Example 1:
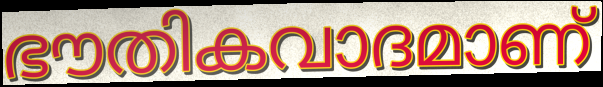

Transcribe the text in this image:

ഭൗതികവാദമാണ്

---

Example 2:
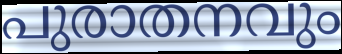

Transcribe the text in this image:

പുരാതനവും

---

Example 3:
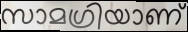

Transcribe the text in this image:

സാമഗ്രിയാണ്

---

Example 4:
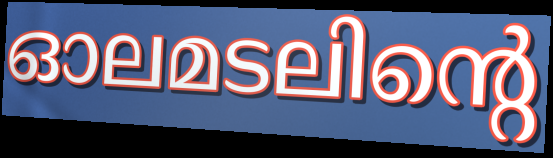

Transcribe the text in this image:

ഓലമടലിന്റെ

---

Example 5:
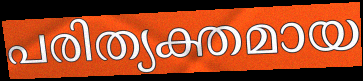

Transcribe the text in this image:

പരിത്യക്തമായ